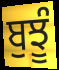
ਬੁਝੂੰ